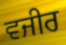
ਵਜੀਰ